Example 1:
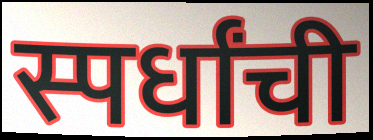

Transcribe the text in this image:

स्पर्धांची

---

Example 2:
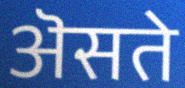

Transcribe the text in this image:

ऄसते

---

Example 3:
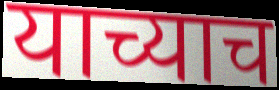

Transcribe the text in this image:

याच्याच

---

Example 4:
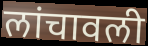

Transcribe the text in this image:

लांचावली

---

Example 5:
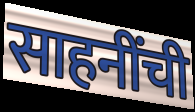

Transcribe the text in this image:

साहनींची